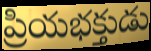
ప్రియభక్తుడు